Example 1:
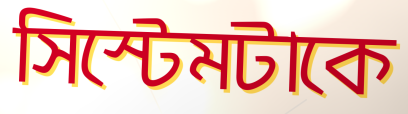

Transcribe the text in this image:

সিস্টেমটাকে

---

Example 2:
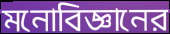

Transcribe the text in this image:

মনোবিজ্ঞানের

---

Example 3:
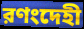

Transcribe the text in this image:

রণংদেহী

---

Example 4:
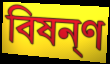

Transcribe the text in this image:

বিষন্ণ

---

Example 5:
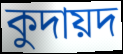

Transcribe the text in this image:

কুদায়দ